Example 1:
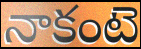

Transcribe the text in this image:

నాకంటె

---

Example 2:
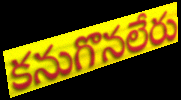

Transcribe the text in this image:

కనుగొనలేరు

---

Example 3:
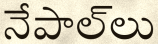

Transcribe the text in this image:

నేపాల్‌లు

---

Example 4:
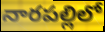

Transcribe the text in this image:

నారపల్లిలో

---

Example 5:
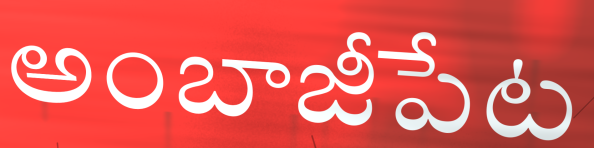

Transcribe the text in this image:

అంబాజీపేట